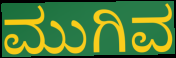
ಮುಗಿವ